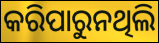
କରିପାରୁନଥିଲି